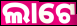
ଲାଟେ